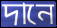
দানে